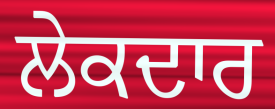
ਲੇਕਦਾਰ